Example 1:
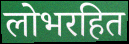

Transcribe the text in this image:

लोभरहित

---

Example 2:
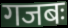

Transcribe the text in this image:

गजबः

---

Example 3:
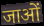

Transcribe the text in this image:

जाओं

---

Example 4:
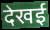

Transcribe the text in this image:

देखई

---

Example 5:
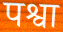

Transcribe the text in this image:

पश्वा